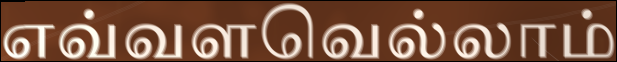
எவ்வளவெல்லாம்